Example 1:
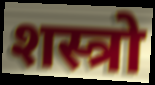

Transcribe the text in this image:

शस्त्रो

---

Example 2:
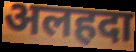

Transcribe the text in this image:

अलहदा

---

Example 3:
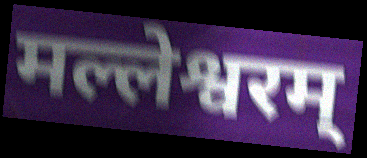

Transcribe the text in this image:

मल्लेश्वरम्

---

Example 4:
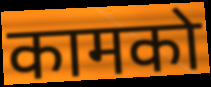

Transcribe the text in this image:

कामको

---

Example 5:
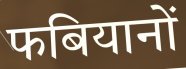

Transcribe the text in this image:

फबियानों